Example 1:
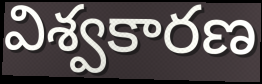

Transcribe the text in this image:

విశ్వకారణ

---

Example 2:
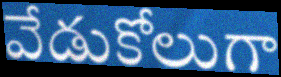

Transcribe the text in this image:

వేడుకోలుగా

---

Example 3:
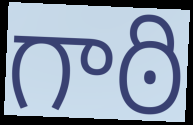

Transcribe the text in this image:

గాఠి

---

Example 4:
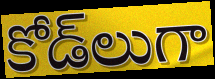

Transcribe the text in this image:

కోడ్‌లుగా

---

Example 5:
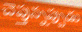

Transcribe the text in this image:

చెప్తున్నప్పుడు